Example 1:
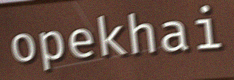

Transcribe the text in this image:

opekhai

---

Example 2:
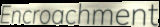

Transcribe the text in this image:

Encroachment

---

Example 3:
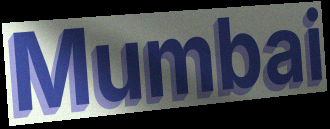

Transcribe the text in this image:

Mumbai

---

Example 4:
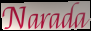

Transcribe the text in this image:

Narada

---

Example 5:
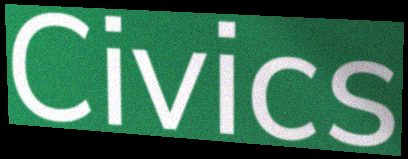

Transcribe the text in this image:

Civics